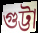
গুট্টা